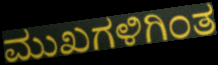
ಮುಖಗಳಿಗಿಂತ